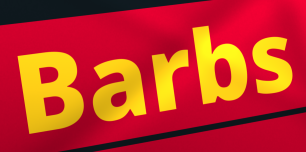
Barbs